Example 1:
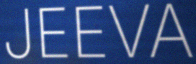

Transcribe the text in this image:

JEEVA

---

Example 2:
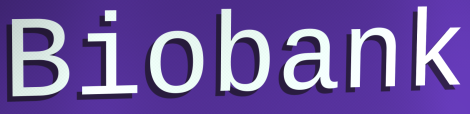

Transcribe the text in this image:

Biobank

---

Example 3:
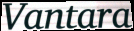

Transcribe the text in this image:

Vantara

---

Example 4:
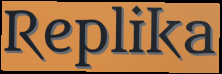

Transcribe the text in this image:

Replika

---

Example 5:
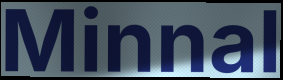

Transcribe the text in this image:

Minnal